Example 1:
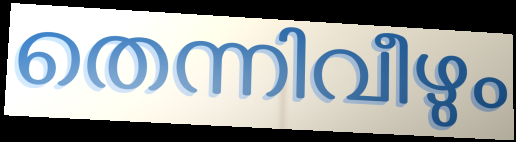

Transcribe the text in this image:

തെന്നിവീഴും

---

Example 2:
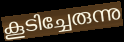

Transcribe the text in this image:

കൂടിച്ചേരുന്നു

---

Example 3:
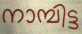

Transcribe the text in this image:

നാമ്പിട്ട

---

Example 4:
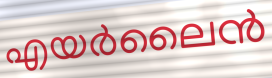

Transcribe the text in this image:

എയർലൈൻ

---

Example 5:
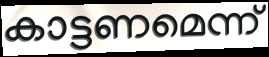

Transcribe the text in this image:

കാട്ടണമെന്ന്